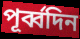
পূর্ব্বদিন